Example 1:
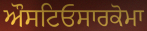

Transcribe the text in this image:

ਔਸਟਿਓਸਾਰਕੋਮਾ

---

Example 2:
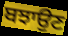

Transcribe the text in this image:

ਬਝਾਉਣ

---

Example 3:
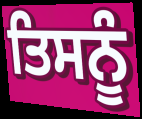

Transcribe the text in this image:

ਤਿਸਨੂੰ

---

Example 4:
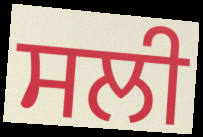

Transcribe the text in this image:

ਸਲੀ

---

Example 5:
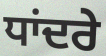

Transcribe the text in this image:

ਧਾਂਦਰੇ